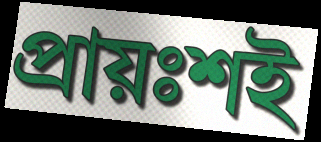
প্রায়ঃশই